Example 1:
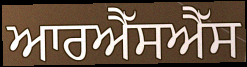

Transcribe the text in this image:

ਆਰਐੱਸਐੱਸ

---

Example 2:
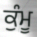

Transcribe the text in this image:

ਕੁੰਮੂ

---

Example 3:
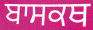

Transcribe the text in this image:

ਬਾਸਕਥ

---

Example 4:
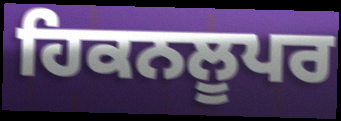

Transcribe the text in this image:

ਹਿਕਨਲੂਪਰ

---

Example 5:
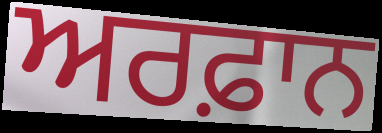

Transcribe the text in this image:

ਅਰਫ਼ਾਨ